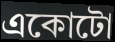
একোটো